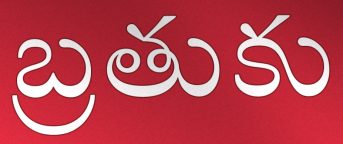
బ్రతుకు